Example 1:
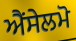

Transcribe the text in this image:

ਐਂਸੇਲਮੋ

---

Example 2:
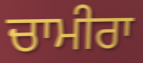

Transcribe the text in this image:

ਚਾਮੀਰਾ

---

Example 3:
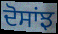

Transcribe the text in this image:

ਦੋਸਾਂਝ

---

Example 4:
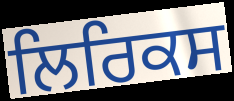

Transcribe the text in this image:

ਲਿਰਿਕਸ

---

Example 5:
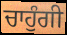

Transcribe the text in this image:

ਚਾਹੁੰਗੀ